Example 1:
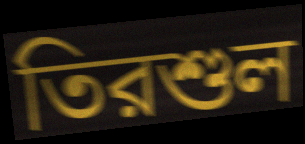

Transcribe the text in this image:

তিরশুল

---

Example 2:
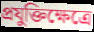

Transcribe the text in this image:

প্রযুক্তিক্ষেত্রে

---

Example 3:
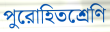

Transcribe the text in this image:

পুরোহিতশ্রেণি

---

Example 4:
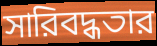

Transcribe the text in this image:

সারিবদ্ধতার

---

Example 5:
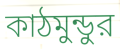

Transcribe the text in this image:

কাঠমুন্ডুর